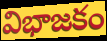
విభాజకం